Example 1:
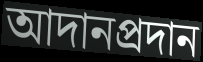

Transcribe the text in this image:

আদানপ্রদান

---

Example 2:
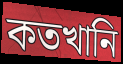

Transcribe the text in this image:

কতখানি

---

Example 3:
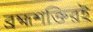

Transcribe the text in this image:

ব্রহ্মশক্তিরই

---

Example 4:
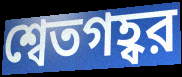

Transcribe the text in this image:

শ্বেতগহ্বর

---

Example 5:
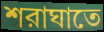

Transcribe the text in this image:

শরাঘাতে